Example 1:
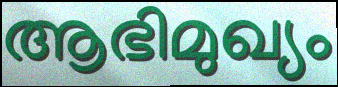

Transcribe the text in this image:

ആഭിമുഖ്യം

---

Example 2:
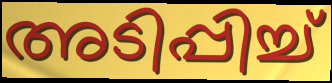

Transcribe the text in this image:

അടിപ്പിച്ച്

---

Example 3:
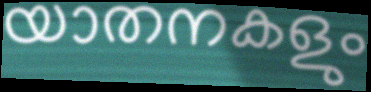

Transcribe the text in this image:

യാതനകളും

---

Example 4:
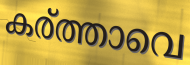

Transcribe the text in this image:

കര്ത്താവെ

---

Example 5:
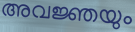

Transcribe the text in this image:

അവജ്ഞയും